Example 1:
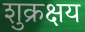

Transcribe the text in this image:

शुक्रक्षय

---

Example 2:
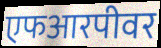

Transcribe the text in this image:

एफआरपीवर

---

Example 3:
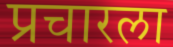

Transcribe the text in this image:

प्रचारला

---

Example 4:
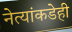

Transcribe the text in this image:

नेत्यांकडेही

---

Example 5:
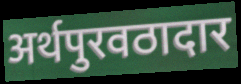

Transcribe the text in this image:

अर्थपुरवठादार